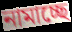
নামাচ্ছে